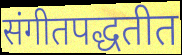
संगीतपद्धतीत